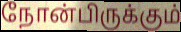
நோன்பிருக்கும்